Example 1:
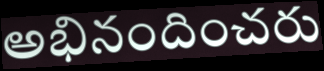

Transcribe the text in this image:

అభినందించరు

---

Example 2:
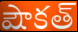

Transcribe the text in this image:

షౌకత్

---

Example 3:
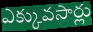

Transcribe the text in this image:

ఎక్కువసార్లు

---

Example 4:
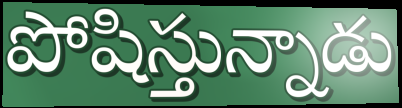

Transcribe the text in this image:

పోషిస్తున్నాడు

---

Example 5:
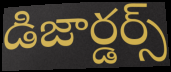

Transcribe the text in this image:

డిజార్డర్స్